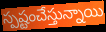
స్పష్టంచేస్తున్నాయి